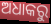
ଅଧାକରୁ